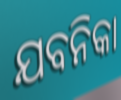
ଯବନିକା